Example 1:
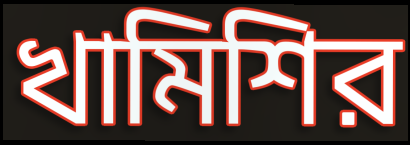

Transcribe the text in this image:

খামিশির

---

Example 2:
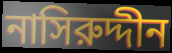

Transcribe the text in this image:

নাসিরুদ্দীন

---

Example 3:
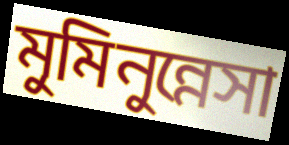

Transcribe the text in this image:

মুমিনুন্নেসা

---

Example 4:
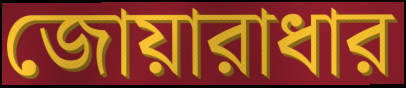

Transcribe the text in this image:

জোয়ারাধার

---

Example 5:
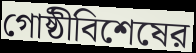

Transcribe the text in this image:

গোষ্ঠীবিশেষের